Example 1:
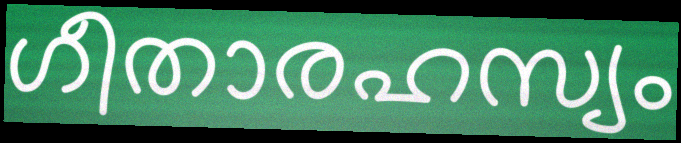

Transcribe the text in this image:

ഗീതാരഹസ്യം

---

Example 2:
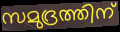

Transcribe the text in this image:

സമുദ്രത്തിന്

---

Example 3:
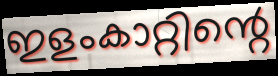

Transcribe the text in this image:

ഇളംകാറ്റിന്റെ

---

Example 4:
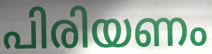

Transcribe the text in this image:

പിരിയണം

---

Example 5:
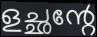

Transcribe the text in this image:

ളച്ഛന്റേ